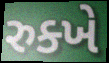
રુક્ખે